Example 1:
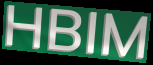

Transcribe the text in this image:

HBIM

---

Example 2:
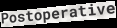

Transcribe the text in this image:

Postoperative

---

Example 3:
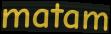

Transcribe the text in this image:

matam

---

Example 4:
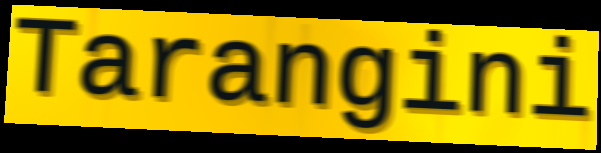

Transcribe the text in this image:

Tarangini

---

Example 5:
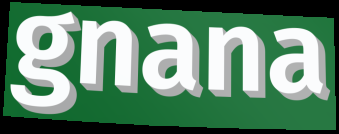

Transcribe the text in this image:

gnana